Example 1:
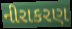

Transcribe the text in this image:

નીરાકરણ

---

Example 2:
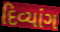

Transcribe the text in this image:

દિવ્યાંગ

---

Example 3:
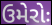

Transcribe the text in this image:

ઉમેરોઃ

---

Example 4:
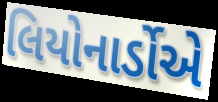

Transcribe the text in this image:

લિયોનાર્ડોએ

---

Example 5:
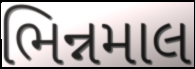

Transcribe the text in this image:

ભિન્નમાલ